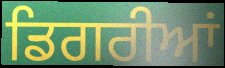
ਡਿਗਰੀਆਂ